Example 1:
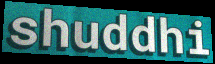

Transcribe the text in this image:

shuddhi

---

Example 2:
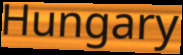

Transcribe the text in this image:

Hungary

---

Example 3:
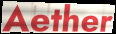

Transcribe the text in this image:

Aether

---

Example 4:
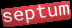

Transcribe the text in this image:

septum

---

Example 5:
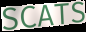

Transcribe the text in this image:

SCATS